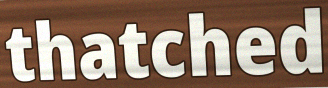
thatched